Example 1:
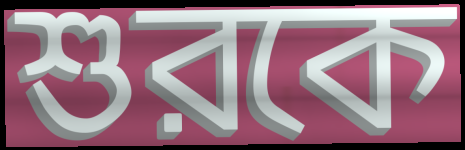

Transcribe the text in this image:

শুরকে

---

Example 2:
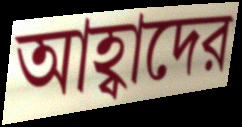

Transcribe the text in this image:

আহ্বাদের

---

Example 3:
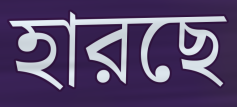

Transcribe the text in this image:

হারছে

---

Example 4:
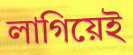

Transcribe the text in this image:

লাগিয়েই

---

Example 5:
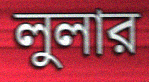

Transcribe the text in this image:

লুলার